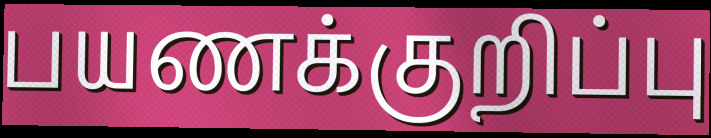
பயணக்குறிப்பு